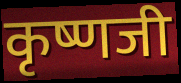
कृष्णजी